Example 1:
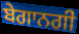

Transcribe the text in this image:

ਬੇਗਾਨਗੀ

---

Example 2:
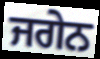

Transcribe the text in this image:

ਜਗੇਨ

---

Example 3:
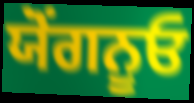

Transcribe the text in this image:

ਯੋਂਗਨੂਓ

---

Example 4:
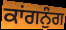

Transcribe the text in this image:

ਕਾਂਗਨੁੰਗ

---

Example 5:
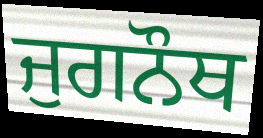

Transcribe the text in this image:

ਜੁਗਨੌਥ